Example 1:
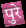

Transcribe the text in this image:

पुरे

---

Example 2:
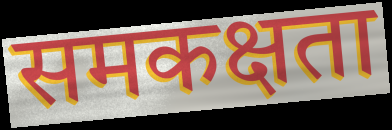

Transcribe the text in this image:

समकक्षता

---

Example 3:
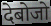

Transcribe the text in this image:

देबोजो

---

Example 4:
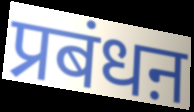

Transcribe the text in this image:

प्रबंधऩ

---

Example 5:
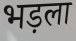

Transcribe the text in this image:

भड़ला